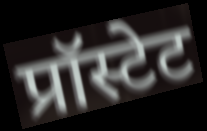
प्रॉस्टेट